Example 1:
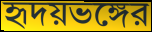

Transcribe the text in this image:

হৃদয়ভঙ্গের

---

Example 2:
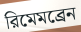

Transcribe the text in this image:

রিমেমব্রেন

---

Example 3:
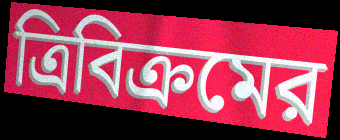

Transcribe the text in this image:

ত্রিবিক্রমের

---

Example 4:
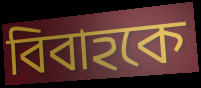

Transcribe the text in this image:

বিবাহকে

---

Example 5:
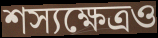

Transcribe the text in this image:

শস্যক্ষেত্রও